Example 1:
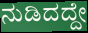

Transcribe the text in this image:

ನುಡಿದದ್ದೇ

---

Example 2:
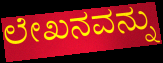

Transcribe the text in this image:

ಲೇಖನವನ್ನು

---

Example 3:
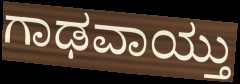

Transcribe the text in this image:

ಗಾಢವಾಯ್ತು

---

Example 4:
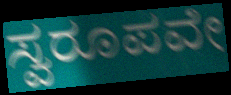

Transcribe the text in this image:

ಸ್ವರೂಪವೇ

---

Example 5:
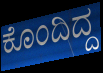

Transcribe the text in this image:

ಕೊಂದಿದ್ದ